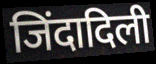
जिंदादिली